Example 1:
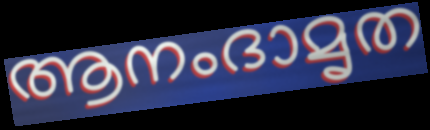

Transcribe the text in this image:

ആനംദാമൃത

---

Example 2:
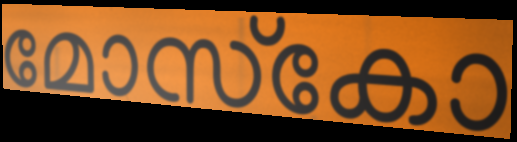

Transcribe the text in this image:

മോസ്‌കോ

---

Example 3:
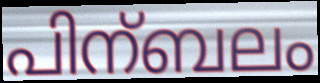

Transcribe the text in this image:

പിന്ബലം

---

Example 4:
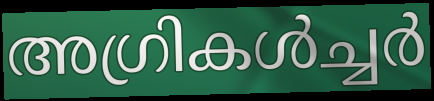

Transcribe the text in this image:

അഗ്രികൾച്ചർ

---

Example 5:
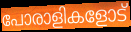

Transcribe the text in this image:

പോരാളികളോട്